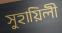
সুহায়িলী